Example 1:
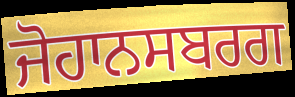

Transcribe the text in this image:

ਜੋਹਾਨਸਬਰਗ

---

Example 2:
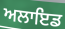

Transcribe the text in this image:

ਅਲਾਇਡ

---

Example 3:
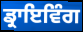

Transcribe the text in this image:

ਡ੍ਰਾਇਵਿੰਗ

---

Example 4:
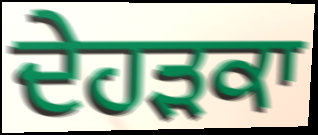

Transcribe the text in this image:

ਦੇਹੜਕਾ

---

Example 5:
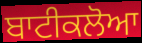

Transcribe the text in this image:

ਬਾਟੀਕਲੋਆ